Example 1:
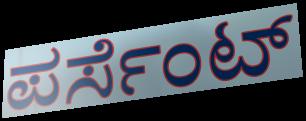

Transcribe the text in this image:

ಪರ್ಸೆಂಟ್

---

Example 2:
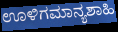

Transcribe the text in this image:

ಊಳಿಗಮಾನ್ಯಶಾಹಿ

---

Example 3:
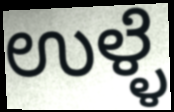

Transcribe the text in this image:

ಉಳ್ಳೆ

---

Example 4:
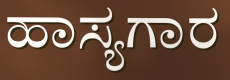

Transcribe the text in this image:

ಹಾಸ್ಯಗಾರ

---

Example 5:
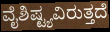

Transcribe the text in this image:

ವೈಶಿಷ್ಟ್ಯವಿರುತ್ತದೆ